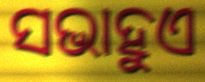
ସଭାହୁଏ